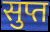
सुप्त